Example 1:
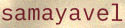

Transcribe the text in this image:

samayavel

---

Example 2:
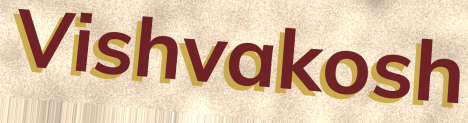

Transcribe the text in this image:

Vishvakosh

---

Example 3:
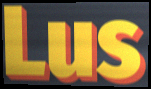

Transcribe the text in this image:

Lus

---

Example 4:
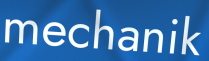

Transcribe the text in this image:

mechanik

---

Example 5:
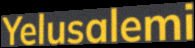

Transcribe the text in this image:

Yelusalemi